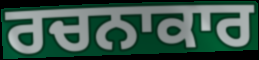
ਰਚਨਾਕਾਰ